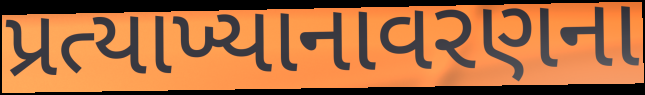
પ્રત્યાખ્યાનાવરણના